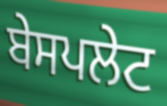
ਬੇਸਪਲੇਟ